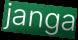
janga